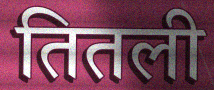
तितली